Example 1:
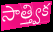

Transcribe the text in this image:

సాత్త్విక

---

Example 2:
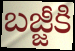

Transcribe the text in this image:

బజ్జీకి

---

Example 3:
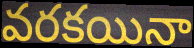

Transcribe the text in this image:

వరకయినా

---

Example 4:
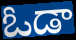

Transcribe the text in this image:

ఓడా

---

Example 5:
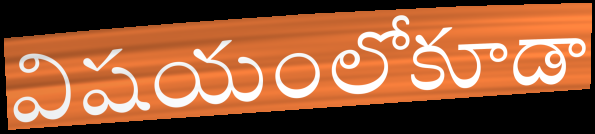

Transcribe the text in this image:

విషయంలోకూడా